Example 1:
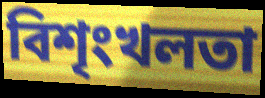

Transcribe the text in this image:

বিশৃংখলতা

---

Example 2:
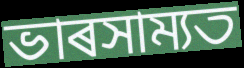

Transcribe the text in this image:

ভাৰসাম্যত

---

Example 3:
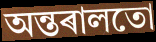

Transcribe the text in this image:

অন্তৰালতো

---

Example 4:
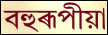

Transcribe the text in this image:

বহুৰূপীয়া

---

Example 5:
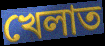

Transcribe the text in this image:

খেলাত